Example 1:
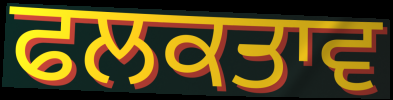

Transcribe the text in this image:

ਫਲਕਤਾਵ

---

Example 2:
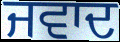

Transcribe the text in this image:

ਜਵਾਦ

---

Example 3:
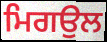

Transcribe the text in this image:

ਮਿਗਉਲ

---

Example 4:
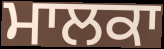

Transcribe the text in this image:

ਮਾਲਕਾ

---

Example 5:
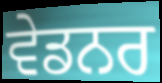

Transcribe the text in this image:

ਵੇਡਨਰ